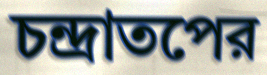
চন্দ্রাতপের